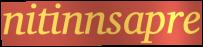
nitinnsapre